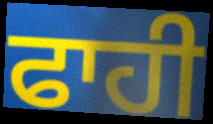
ਫਾਹੀ